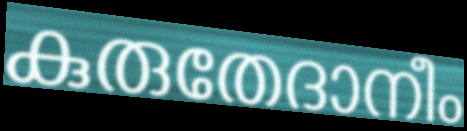
കുരുതേദാനീം